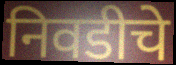
निवडीचे